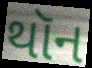
થૉન